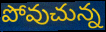
పోవుచున్న